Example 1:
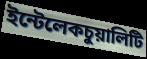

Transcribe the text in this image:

ইন্টেলেকচুয়ালিটি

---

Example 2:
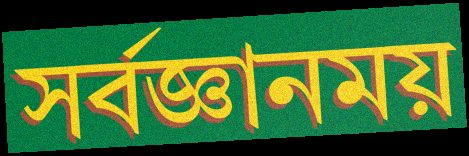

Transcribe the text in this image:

সর্বজ্ঞানময়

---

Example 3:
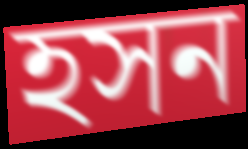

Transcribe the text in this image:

হসন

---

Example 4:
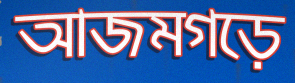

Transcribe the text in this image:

আজমগড়ে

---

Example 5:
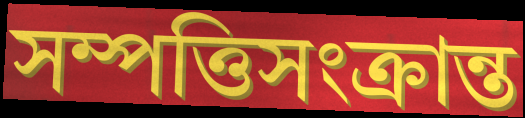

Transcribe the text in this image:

সম্পত্তিসংক্রান্ত